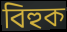
বিহুক